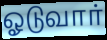
ஓடுவார்